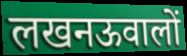
लखनऊवालों